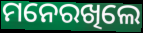
ମନେରଖିଲେ